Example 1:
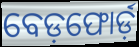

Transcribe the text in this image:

ବେଡ଼ଫୋର୍ଡ଼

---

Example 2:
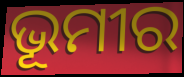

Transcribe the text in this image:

ଭୂମୀର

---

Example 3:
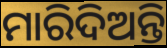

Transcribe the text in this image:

ମାରିଦିଅନ୍ତି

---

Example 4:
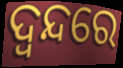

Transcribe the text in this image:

ଦ୍ଵନ୍ଦରେ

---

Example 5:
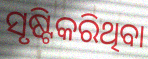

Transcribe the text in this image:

ସୃଷ୍ଟିକରିଥିବା